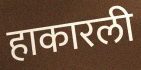
हाकारली